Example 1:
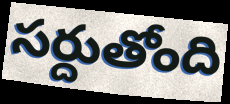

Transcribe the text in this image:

సర్దుతోంది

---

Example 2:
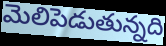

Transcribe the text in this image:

మెలిపెడుతున్నది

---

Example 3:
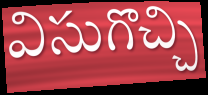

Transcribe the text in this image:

విసుగొచ్చి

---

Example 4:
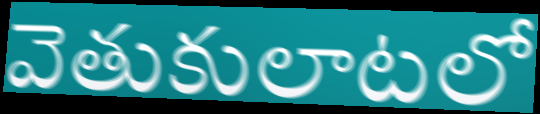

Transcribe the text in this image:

వెతుకులాటలో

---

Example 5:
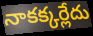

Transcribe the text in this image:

నాకక్కర్లేదు